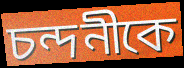
চন্দনীকে